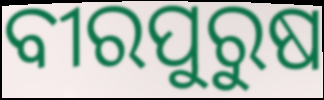
ବୀରପୁରୁଷ